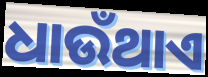
ଧାଉଁଥାଏ